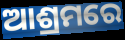
ଆଶ୍ରମରେ